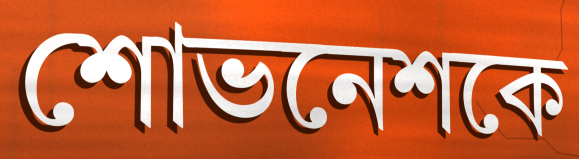
শোভনেশকে